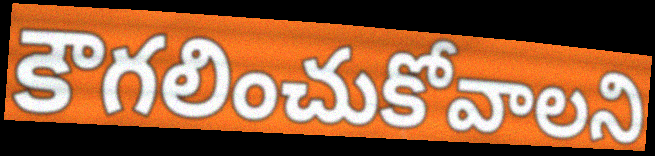
కౌగలించుకోవాలని